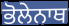
ਭੋਲੇਨਾਥ